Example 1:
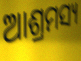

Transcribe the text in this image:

ଆଶ୍ରମସ୍ୟ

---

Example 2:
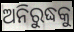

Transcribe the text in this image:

ଅନିରୁଦ୍ଧକୁ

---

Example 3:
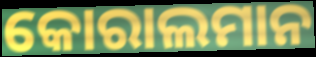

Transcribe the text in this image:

କୋରାଲମାନ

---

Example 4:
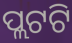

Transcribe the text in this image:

ପ୍ଲଟଟି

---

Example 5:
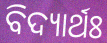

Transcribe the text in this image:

ବିଦ୍ୟାର୍ଥଃ